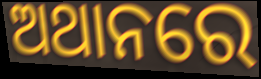
ଅଥାନରେ